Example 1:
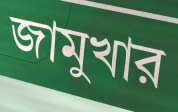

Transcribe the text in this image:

জামুখার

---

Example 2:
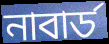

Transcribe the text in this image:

নাবার্ড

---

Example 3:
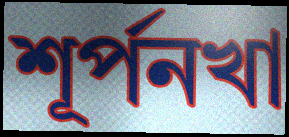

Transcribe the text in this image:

শূর্পনখা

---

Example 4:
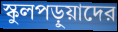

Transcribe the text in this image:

স্কুলপড়ুয়াদের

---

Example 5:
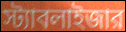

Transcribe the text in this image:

স্ট্যাবলাইজার